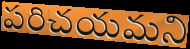
పరిచయమని